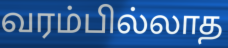
வரம்பில்லாத